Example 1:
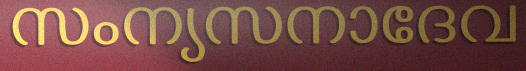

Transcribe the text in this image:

സംന്യസനാദേവ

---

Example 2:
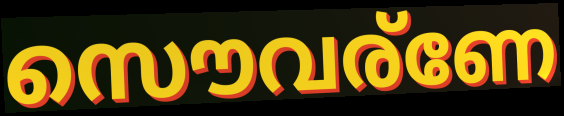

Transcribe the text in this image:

സൌവര്ണേ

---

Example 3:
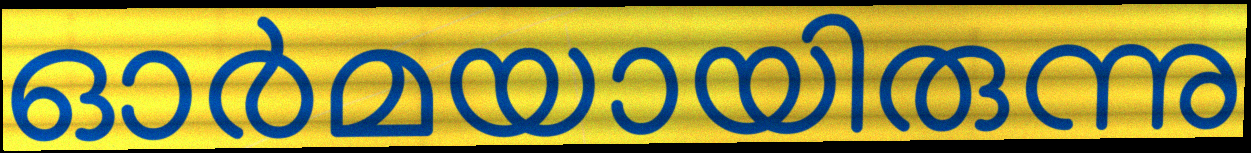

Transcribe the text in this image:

ഓർമയായിരുന്നു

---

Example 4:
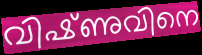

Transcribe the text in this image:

വിഷ്‌ണുവിനെ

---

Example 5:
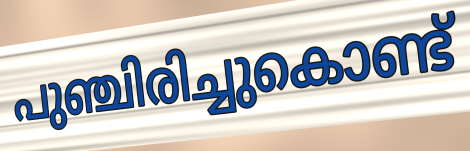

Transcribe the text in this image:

പുഞ്ചിരിച്ചുകൊണ്ട്